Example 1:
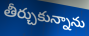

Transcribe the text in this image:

తీర్చుకున్నాను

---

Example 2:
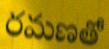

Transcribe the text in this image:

రమణతో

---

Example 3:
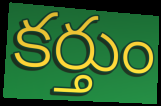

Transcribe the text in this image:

కర్తుం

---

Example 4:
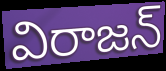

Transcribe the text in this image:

విరాజన్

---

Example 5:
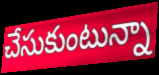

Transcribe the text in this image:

చేసుకుంటున్నా